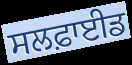
ਸਲਫ਼ਾਈਡ